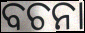
ବଚନା